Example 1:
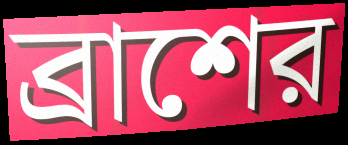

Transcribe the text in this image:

ব্রাশের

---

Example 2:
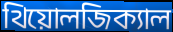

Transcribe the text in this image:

থিয়োলজিক্যাল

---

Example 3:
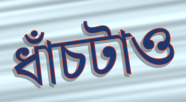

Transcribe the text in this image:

ধাঁচটাও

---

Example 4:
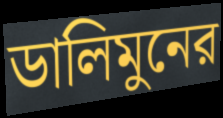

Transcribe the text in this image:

ডালিমুনের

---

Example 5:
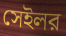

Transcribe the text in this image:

সেইলর